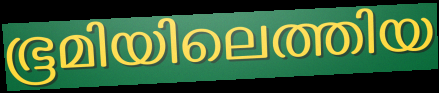
ഭൂമിയിലെത്തിയ